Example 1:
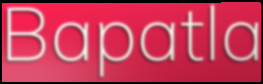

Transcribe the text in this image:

Bapatla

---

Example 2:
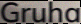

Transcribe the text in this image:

Gruha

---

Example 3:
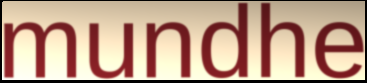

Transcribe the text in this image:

mundhe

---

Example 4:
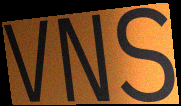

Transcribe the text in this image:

VNS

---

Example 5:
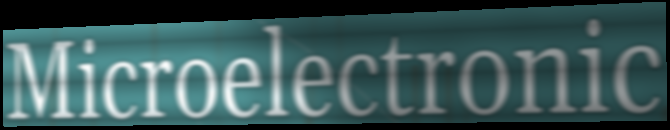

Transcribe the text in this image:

Microelectronic